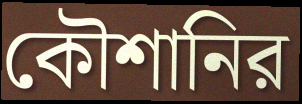
কৌশানির